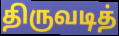
திருவடித்